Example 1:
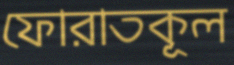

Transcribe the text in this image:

ফোরাতকূল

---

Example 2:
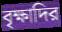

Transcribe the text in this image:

বৃক্ষাদির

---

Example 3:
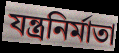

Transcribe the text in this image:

যন্ত্রনির্মাতা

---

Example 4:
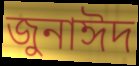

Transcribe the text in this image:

জুনাঈদ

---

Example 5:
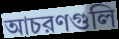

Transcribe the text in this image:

আচরণগুলি